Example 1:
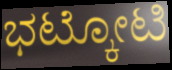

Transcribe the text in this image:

ಭಟ್ಕೋಟಿ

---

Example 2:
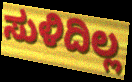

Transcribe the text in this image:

ಸುಳಿದಿಲ್ಲ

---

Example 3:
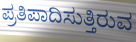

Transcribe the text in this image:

ಪ್ರತಿಪಾದಿಸುತ್ತಿರುವ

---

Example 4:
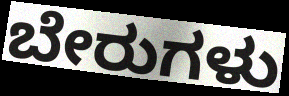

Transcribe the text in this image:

ಬೇರುಗಳು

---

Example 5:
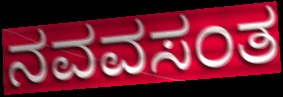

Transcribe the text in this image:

ನವವಸಂತ